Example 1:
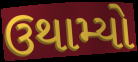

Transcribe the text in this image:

ઉથામ્યો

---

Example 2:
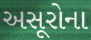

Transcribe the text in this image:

અસૂરોના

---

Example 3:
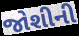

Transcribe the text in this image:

જોશીની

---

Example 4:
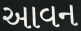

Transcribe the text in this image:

આવન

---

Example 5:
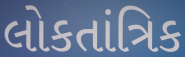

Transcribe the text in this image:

લોકતાંત્રિક